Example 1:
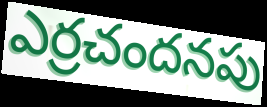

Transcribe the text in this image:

ఎర్రచందనపు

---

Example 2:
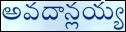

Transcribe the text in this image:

అవదాన్లయ్య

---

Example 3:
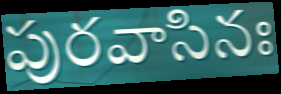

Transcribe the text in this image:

పురవాసినః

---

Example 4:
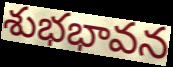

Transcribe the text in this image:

శుభభావన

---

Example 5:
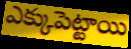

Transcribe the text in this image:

ఎక్కుపెట్టాయి